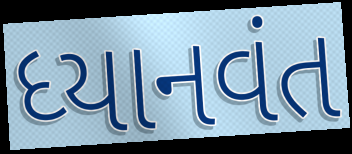
ધ્યાનવંત